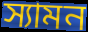
স্যামন